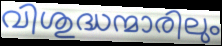
വിശുദ്ധന്മാരിലും